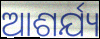
ଆଶର୍ଯ୍ୟ